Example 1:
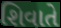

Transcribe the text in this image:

શિવાતે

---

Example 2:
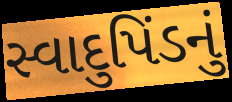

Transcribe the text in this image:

સ્વાદુપિંડનું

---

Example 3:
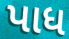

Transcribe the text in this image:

પાધ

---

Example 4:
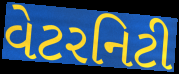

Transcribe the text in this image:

વેટરનિટી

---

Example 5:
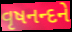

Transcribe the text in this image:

વૃષનન્દને